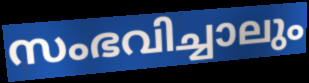
സംഭവിച്ചാലും